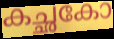
കച്ഛകോ